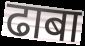
ढाबा